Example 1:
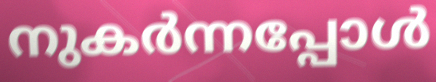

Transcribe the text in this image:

നുകർന്നപ്പോൾ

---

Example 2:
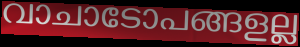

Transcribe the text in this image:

വാചാടോപങ്ങളല്ല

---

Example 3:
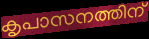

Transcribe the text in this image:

കൃപാസനത്തിന്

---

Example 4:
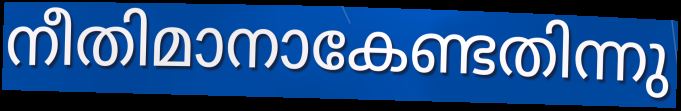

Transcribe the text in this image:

നീതിമാനാകേണ്ടതിന്നു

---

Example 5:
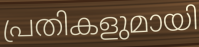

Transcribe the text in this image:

പ്രതികളുമായി